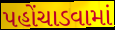
પહોંચાડવામાં